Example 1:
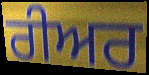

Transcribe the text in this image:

ਰੀਅਰ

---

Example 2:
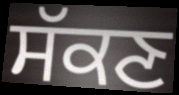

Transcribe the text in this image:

ਸੱਕਣ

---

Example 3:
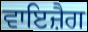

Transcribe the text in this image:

ਵਾਇਜ਼ੈਗ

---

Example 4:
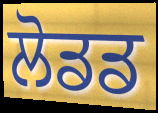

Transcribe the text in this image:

ਲੋਡਡ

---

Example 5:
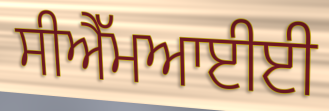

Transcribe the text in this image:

ਸੀਐੱਮਆਈਈ